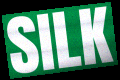
SILK